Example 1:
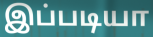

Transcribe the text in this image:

இப்படியா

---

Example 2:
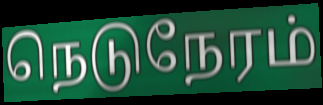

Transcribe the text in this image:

நெடுநேரம்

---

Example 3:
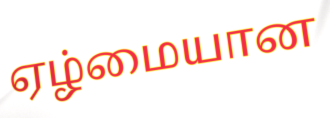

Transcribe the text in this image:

ஏழ்மையான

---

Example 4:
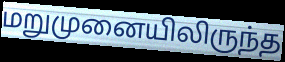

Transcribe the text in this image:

மறுமுனையிலிருந்த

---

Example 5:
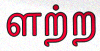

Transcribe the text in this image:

ளற்ற